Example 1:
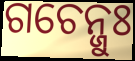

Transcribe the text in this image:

ଗଚେନ୍ଜୁଃ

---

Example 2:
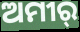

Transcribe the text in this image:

ଅମୀର୍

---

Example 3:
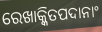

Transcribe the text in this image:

ରେଖାକ୍କିତପଦାନାଂ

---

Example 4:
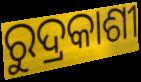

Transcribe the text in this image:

ରୁଦ୍ରକାଶୀ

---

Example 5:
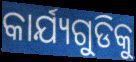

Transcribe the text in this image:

କାର୍ଯ୍ୟଗୁଡିକୁ